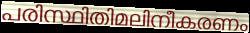
പരിസ്ഥിതിമലിനീകരണം